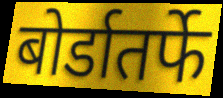
बोर्डातर्फे